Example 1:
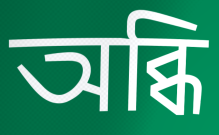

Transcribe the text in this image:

অব্ধি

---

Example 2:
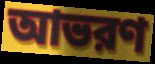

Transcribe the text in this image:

আভরণ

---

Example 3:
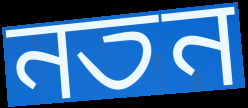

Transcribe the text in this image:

নতন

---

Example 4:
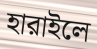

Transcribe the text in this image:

হারাইলে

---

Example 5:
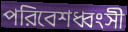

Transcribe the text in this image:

পরিবেশধ্বংসী